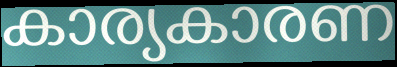
കാര്യകാരണ